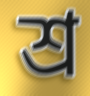
শ্র